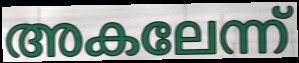
അകലേന്ന്